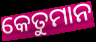
କେତୁମାନ